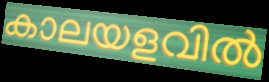
കാലയളവിൽ